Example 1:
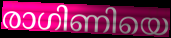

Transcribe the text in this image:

രാഗിണിയെ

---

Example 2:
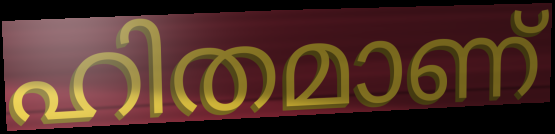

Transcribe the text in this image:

ഹിതമാണ്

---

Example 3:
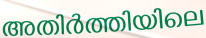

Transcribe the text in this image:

അതിർത്തിയിലെ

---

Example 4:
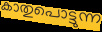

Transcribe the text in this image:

കാതുപൊട്ടുന്ന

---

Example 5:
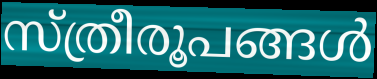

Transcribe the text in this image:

സ്ത്രീരൂപങ്ങൾ